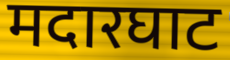
मदारघाट